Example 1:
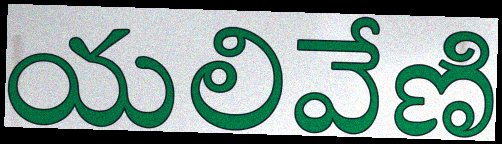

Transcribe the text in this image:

యలివేణి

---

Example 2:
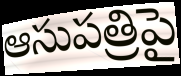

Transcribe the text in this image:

ఆసుపత్రిపై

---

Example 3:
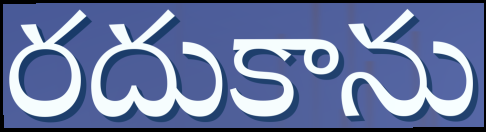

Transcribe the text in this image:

రదుకాను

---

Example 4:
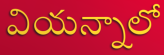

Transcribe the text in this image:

వియన్నాలో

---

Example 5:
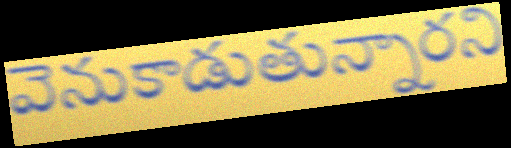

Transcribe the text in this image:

వెనుకాడుతున్నారని